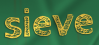
sieve